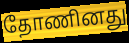
தோணினது